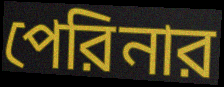
পেরিনার